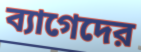
ব্যাগেদের